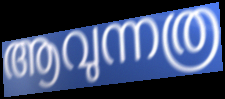
ആവുന്നത്ര